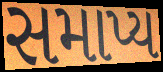
સમાપ્ય